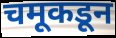
चमूकडून